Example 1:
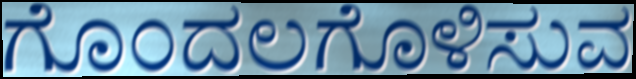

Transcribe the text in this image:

ಗೊಂದಲಗೊಳಿಸುವ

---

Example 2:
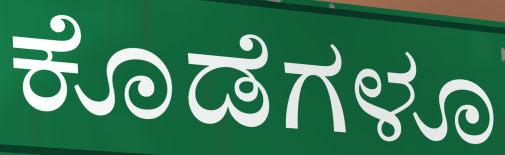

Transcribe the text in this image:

ಕೊಡೆಗಳೂ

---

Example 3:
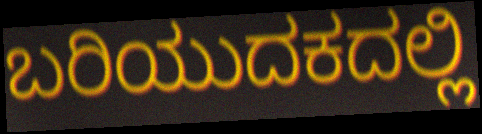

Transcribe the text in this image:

ಬರಿಯುದಕದಲ್ಲಿ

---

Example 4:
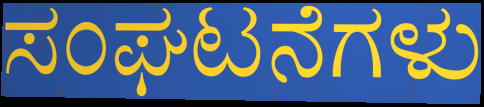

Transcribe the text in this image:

ಸಂಘಟನೆಗಳು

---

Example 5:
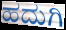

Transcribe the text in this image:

ಹದುಗಿ